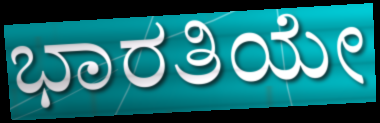
ಭಾರತಿಯೇ